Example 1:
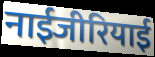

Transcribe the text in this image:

नाईजीरियाई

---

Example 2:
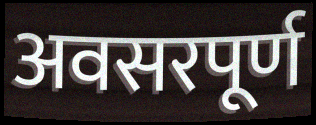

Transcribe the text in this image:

अवसरपूर्ण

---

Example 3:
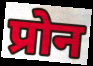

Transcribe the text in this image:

प्रोन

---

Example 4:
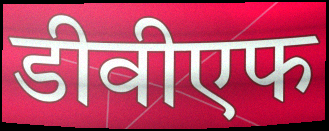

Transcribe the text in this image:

डीवीएफ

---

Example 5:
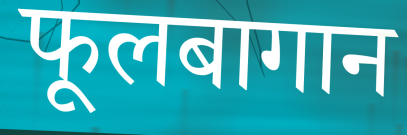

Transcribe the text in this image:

फूलबागान